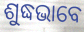
ଶୁଦ୍ଧଭାବେ